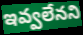
ఇవ్వలేనని